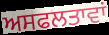
ਅਸਫਲਤਾਵਾਂ